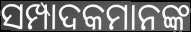
ସମ୍ପାଦକମାନଙ୍କ